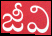
జీవి